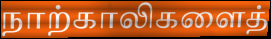
நாற்காலிகளைத்